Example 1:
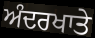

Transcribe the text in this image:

ਅੰਦਰਖਾਤੇ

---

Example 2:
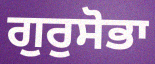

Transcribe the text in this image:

ਗੁਰੁਸੋਭਾ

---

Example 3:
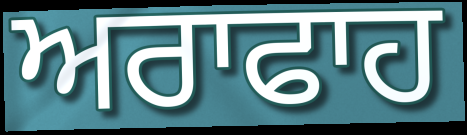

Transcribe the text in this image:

ਅਰਾਫਾਹ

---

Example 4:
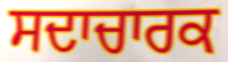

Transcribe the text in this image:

ਸਦਾਚਾਰਕ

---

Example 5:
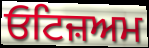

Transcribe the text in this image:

ਓਟਿਜ਼ਅਮ